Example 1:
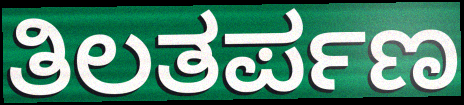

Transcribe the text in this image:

ತಿಲತರ್ಪಣ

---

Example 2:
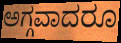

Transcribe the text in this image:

ಅಗ್ಗವಾದರೂ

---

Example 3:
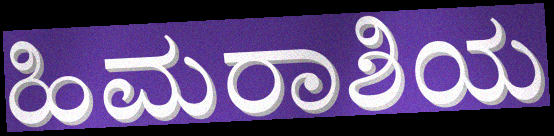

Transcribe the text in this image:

ಹಿಮರಾಶಿಯ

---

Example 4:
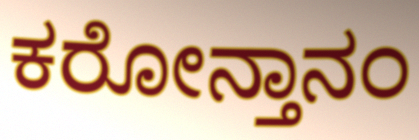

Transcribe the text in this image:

ಕರೋನ್ತಾನಂ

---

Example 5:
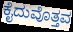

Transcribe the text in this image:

ಕೈದುವೊತ್ತವ